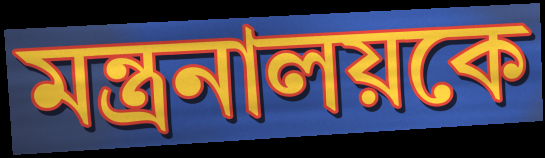
মন্ত্রনালয়কে